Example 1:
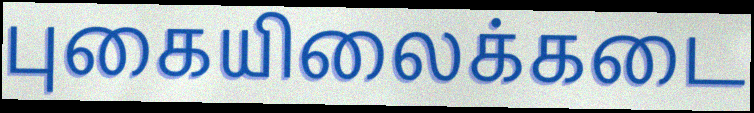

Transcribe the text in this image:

புகையிலைக்கடை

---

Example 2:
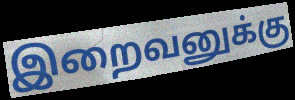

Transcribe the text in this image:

இறைவனுக்கு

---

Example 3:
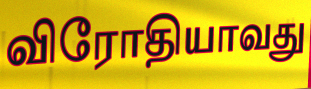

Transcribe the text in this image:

விரோதியாவது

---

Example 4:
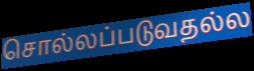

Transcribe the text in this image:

சொல்லப்படுவதல்ல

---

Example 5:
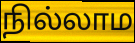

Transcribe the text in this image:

நில்லாம